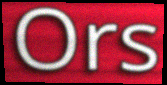
Ors